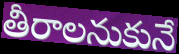
తీరాలనుకునే